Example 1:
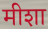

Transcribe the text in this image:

मीशा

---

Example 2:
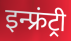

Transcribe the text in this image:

इन्फ्रंट्री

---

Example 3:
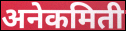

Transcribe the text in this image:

अनेकमिती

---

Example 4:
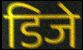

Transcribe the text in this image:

डिजे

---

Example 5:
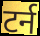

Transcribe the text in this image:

टर्न